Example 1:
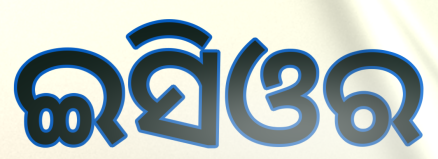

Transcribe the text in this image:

ଇସିଓର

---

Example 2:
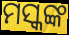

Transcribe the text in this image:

ମସ୍କଙ୍କ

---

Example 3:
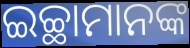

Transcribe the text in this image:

ଇଚ୍ଛାମାନଙ୍କ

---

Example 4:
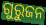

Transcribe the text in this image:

ଗୁରୁଜନ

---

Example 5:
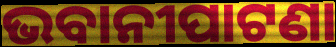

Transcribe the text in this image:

ଭବାନୀପାଟଣା